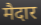
मैदार